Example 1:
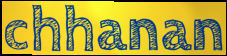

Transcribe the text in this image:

chhanan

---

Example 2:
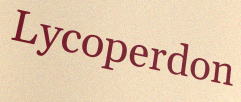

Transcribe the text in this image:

Lycoperdon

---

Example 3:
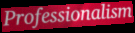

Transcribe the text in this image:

Professionalism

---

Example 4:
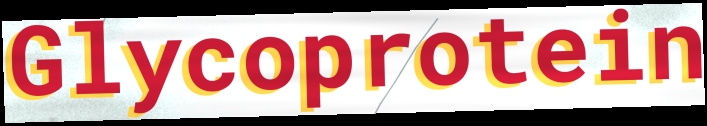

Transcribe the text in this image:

Glycoprotein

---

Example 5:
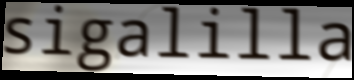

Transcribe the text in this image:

sigalilla